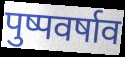
पुष्पवर्षाव